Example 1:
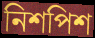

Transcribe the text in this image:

নিশপিশ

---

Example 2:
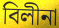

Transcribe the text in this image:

বিলীনা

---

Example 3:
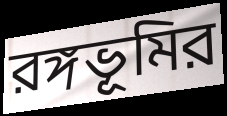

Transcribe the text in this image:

রঙ্গভূমির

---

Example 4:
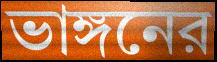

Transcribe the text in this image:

ভাঙ্গনের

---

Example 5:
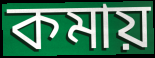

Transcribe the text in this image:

কমায়